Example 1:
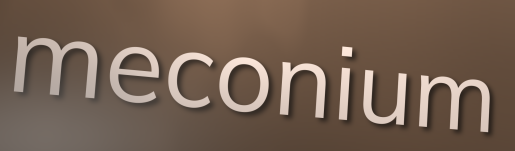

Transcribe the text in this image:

meconium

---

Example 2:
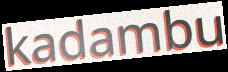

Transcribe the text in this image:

kadambu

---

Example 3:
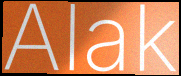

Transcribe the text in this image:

Alak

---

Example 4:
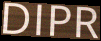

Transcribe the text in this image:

DIPR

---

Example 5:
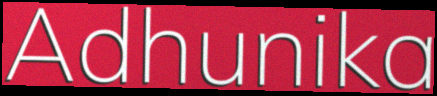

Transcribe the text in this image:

Adhunika